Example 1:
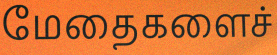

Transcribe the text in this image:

மேதைகளைச்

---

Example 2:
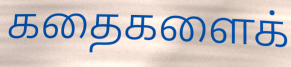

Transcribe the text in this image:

கதைகளைக்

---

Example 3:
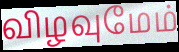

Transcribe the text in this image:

விழவுமேம்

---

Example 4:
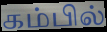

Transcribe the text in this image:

கம்பில்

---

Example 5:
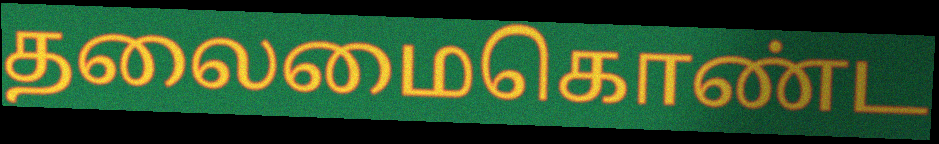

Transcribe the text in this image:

தலைமைகொண்ட